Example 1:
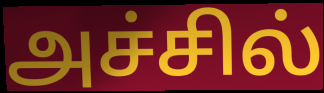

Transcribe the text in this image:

அச்சில்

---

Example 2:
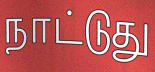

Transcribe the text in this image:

நாட்டுது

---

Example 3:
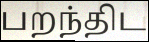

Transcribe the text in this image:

பறந்திட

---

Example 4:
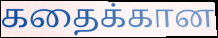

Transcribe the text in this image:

கதைக்கான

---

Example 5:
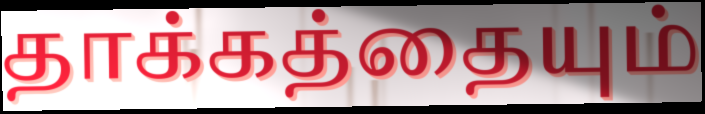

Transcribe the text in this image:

தாக்கத்தையும்